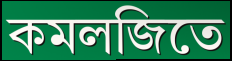
কমলজিতে